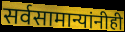
सर्वसामान्यांनीही